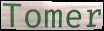
Tomer